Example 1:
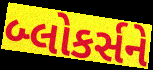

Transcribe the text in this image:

બ્લોકર્સને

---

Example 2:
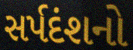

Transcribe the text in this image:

સર્પદંશનો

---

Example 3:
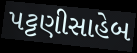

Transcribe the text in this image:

પટ્ટણીસાહેબ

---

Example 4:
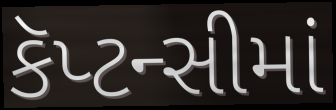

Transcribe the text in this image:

કૅપ્ટન્સીમાં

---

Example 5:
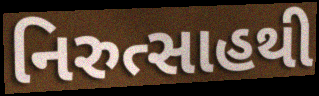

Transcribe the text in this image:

નિરુત્સાહથી